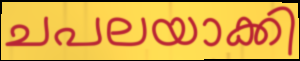
ചപലയാക്കി